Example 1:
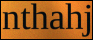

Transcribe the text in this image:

nthahj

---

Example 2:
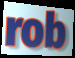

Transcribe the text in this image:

rob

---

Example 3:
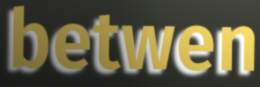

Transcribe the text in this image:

betwen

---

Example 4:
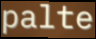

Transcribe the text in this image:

palte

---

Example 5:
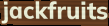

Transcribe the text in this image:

jackfruits